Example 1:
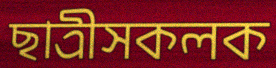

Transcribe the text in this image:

ছাত্ৰীসকলক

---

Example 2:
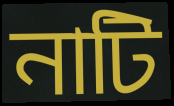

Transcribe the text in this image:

নাটি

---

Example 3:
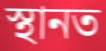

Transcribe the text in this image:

স্থানত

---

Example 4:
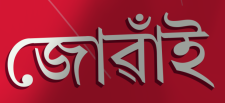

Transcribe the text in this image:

জোৱাঁই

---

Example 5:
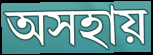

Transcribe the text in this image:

অসহায়